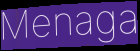
Menaga